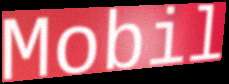
Mobil